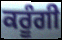
ਕਰੂੰਗੀ